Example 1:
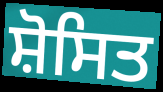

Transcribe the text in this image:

ਸ਼ੋਸਿਤ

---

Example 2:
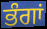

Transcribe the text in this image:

ਭੰਗਾਂ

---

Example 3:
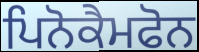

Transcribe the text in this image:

ਪਿਨੋਕੈਮਫੋਨ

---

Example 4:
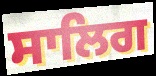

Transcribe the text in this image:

ਸਾਲਿਗ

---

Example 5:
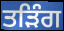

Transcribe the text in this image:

ਤੜਿੰਗ